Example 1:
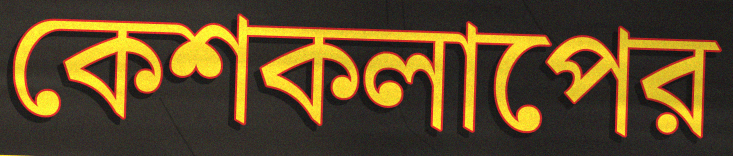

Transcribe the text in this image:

কেশকলাপের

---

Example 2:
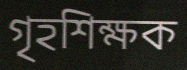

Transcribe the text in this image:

গৃহশিক্ষক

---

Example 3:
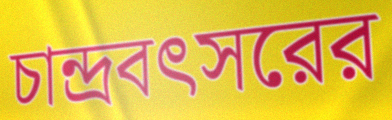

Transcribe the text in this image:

চান্দ্রবৎসরের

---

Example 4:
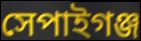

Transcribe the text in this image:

সেপাইগঞ্জ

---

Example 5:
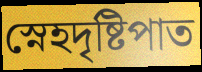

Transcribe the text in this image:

স্নেহদৃষ্টিপাত